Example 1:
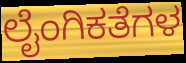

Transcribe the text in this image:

ಲೈಂಗಿಕತೆಗಳ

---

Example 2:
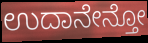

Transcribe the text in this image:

ಉದಾನೇನ್ತೋ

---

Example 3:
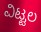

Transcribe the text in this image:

ವಿಟ್ಟಲ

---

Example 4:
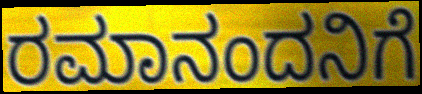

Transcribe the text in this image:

ರಮಾನಂದನಿಗೆ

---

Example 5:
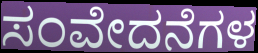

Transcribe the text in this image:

ಸಂವೇದನೆಗಳ